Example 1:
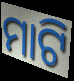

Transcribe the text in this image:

ମାଟି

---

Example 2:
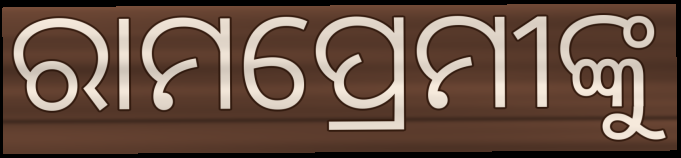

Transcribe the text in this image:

ରାମପ୍ରେମୀଙ୍କୁ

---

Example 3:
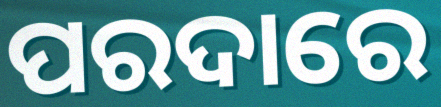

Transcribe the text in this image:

ପରଦାରେ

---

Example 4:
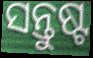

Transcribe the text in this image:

ସନ୍ତୁଷ୍ଟ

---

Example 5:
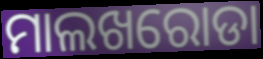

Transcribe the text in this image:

ମାଲଖରୋଡା